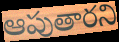
ఆపుతారని